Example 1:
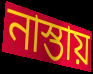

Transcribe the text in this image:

নাস্তায়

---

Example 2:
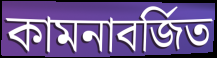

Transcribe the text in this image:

কামনাবর্জিত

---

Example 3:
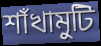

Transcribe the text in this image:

শাঁখামুটি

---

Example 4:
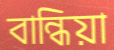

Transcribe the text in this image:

বান্ধিয়া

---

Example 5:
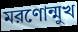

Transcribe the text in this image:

মরণোন্মুখ